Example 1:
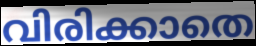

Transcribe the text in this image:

വിരിക്കാതെ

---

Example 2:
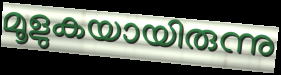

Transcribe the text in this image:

മൂളുകയായിരുന്നു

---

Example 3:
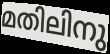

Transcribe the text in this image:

മതിലിനു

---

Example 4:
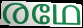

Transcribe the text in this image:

രഥേ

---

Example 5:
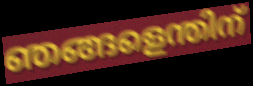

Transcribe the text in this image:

ഞങ്ങളെന്തിന്